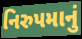
નિરુપમાનું